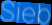
Sieb